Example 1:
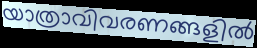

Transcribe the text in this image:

യാത്രാവിവരണങ്ങളിൽ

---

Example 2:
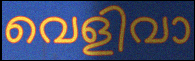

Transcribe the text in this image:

വെളിവാ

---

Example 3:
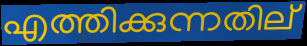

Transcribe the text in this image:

എത്തിക്കുന്നതില്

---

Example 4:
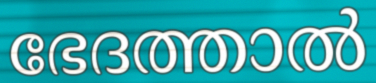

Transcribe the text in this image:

ഭേദത്താൽ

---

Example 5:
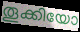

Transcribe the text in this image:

തൂക്കിയോ